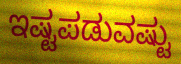
ಇಷ್ಟಪಡುವಷ್ಟು